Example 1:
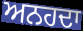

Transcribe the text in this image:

ਅਨਹਦਾ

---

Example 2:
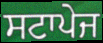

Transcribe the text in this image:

ਸਟਾਪੇਜ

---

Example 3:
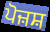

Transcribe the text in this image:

ਪੋਜ਼ਸ਼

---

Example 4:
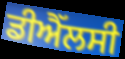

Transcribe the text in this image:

ਡੀਐੱਲਸੀ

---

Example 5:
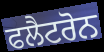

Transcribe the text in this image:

ਫਲੈਟਰੋਨ